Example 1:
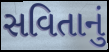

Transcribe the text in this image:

સવિતાનું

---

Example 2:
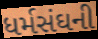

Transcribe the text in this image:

ધર્મસંઘની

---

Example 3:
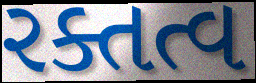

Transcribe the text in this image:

રક્તત્વ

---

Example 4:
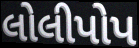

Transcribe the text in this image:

લોલીપોપ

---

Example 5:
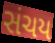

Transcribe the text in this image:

સંચય